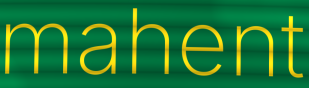
mahent